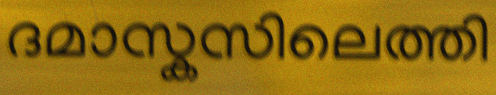
ദമാസ്കസിലെത്തി